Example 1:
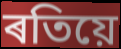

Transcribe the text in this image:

ৰতিয়ে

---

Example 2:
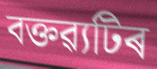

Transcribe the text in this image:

বক্তৱ্যটিৰ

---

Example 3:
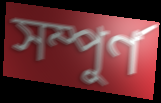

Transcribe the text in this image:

সম্পুৰ্ণ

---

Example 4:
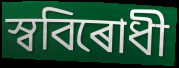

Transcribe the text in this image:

স্ববিৰোধী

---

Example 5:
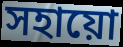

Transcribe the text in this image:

সহায়ো